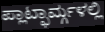
ಪ್ಲಾಟ್ಫಾರ್ಮ್ಗಳಲ್ಲಿ